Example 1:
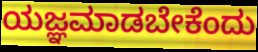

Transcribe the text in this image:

ಯಜ್ಞಮಾಡಬೇಕೆಂದು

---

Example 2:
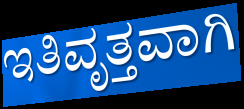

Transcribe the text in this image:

ಇತಿವೃತ್ತವಾಗಿ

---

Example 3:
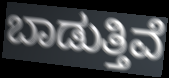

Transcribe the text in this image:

ಬಾಡುತ್ತಿವೆ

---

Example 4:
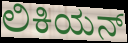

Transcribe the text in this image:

ಲಿಕಿಯನ್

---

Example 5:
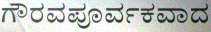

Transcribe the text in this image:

ಗೌರವಪೂರ್ವಕವಾದ